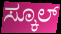
ಸ್ಕೂಲ್